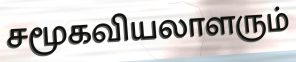
சமூகவியலாளரும்